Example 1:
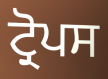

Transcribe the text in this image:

ਟ੍ਰੋਪਸ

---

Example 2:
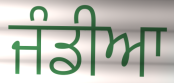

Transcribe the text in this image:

ਜੰਡੀਆ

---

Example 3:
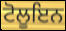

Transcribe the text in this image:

ਟੋਲੂਇਨ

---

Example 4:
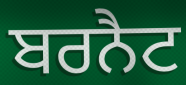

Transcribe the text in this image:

ਬਰਨੈਟ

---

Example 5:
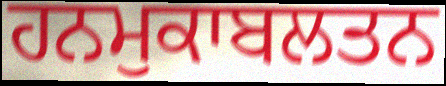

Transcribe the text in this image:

ਹਨਮੁਕਾਬਲਤਨ